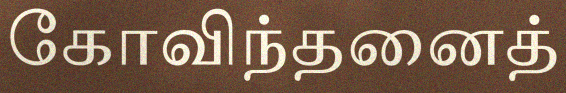
கோவிந்தனைத்